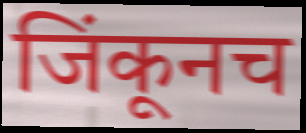
जिंकूनच